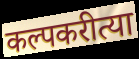
कल्पकरीत्या